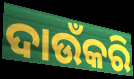
ଦାଉଁକରି